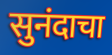
सुनंदाचा